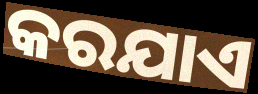
କରଯାଏ